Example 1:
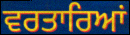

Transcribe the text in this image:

ਵਰਤਾਰਿਆਂ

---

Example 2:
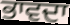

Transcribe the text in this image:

ਭਾਵਦਾ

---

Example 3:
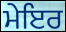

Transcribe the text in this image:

ਮੇਇਰ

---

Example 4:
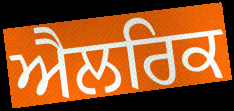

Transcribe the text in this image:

ਐਲਰਿਕ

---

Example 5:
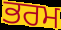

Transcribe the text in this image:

ਭਰਮ